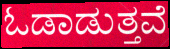
ಓಡಾಡುತ್ತವೆ